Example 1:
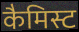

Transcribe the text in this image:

कैमिस्ट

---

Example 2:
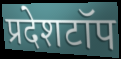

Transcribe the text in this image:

प्रदेशटॉप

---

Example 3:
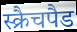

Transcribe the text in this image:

स्क्रैचपैड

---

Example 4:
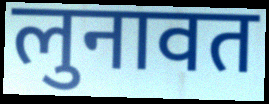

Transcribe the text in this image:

लुनावत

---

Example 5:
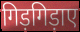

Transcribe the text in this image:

गिड़गिड़ाए